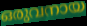
ഒരുവനായ